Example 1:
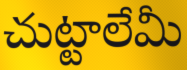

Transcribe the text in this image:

చుట్టాలేమీ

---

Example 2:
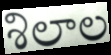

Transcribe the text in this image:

శిలాల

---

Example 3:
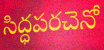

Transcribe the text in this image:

సిద్ధపరచెనో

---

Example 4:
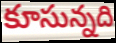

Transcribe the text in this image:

కూసున్నది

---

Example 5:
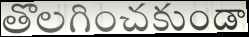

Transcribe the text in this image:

తొలగించకుండా